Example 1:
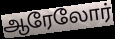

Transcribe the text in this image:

ஆரேலோர்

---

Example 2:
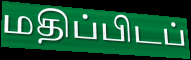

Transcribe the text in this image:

மதிப்பிடப்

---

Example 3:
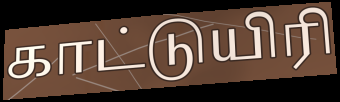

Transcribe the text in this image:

காட்டுயிரி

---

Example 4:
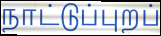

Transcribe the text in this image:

நாட்டுப்புறப்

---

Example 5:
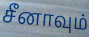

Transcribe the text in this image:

சீனாவும்